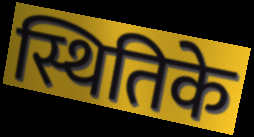
स्थितिके